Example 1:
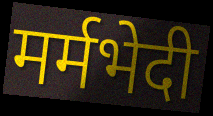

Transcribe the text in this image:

मर्मभेदी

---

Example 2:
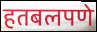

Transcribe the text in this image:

हतबलपणे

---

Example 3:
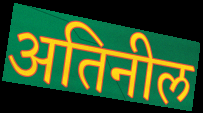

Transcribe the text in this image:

अतिनील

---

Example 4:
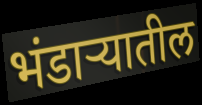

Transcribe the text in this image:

भंडाऱ्यातील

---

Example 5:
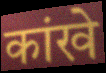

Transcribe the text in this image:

कांखे